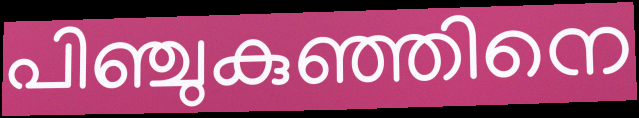
പിഞ്ചുകുഞ്ഞിനെ